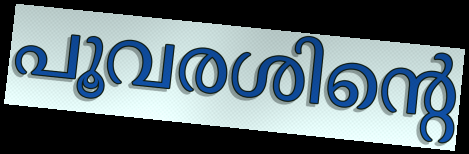
പൂവരശിന്റെ